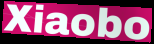
Xiaobo